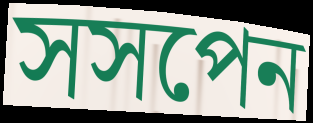
সসপেন